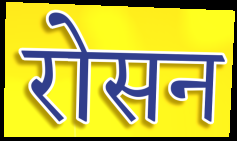
रोसन